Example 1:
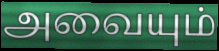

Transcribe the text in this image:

அவையும்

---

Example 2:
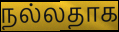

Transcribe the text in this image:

நல்லதாக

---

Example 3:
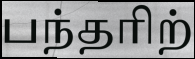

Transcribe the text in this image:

பந்தரிற்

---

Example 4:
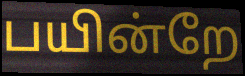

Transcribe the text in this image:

பயின்றே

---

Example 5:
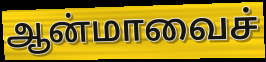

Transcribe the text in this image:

ஆன்மாவைச்